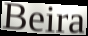
Beira